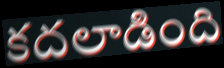
కదలాడింది